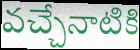
వచ్చేనాటికి